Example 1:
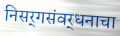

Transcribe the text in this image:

निसर्गसंवर्धनाचा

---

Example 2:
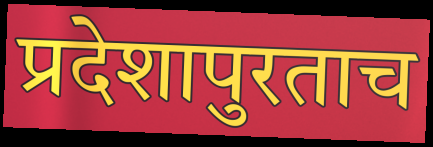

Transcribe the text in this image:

प्रदेशापुरताच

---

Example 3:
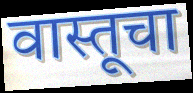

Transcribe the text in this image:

वास्तूचा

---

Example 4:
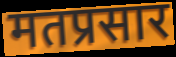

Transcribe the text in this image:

मतप्रसार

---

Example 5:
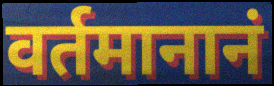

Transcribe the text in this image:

वर्तमानानं